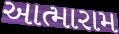
આત્મારામ